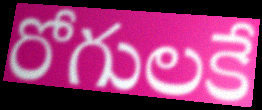
రోగులకే